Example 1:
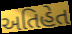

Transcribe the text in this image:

અતિહેત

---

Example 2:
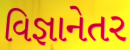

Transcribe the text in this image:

વિજ્ઞાનેતર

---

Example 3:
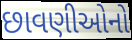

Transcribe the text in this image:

છાવણીઓનો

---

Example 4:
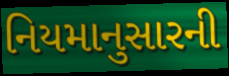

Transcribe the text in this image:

નિયમાનુસારની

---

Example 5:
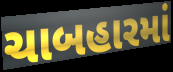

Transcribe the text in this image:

ચાબહારમાં